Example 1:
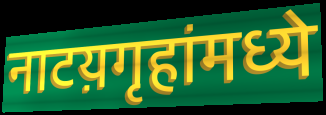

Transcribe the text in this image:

नाटय़गृहांमध्ये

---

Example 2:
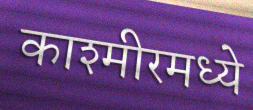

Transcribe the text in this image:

काश्मीरमध्ये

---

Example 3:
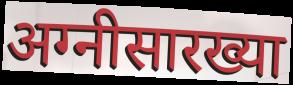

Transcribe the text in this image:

अग्नीसारख्या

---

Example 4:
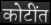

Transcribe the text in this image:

कोटींत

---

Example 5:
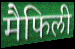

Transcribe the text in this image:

मैफिली